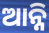
ଆନ୍ନି